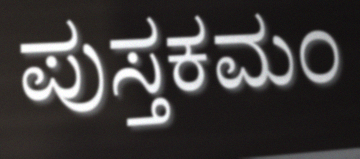
ಪುಸ್ತಕಮಂ